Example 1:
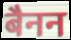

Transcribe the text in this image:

बैनन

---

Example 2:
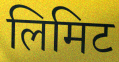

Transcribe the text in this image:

लिमिट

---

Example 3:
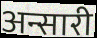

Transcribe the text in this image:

अन्सारी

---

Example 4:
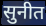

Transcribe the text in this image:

सुनीत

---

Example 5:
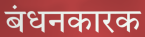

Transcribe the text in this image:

बंधनकारक